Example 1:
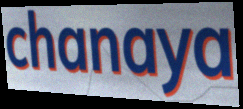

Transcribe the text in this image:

chanaya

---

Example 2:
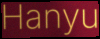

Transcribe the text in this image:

Hanyu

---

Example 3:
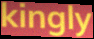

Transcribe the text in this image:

kingly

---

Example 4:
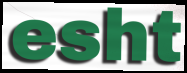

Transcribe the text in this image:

esht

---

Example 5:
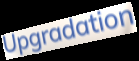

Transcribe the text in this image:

Upgradation